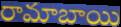
రామాబాయి